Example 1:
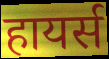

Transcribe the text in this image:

हायर्स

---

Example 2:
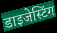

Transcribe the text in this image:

डाइजेस्टिंग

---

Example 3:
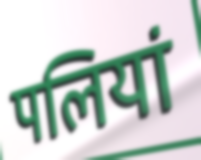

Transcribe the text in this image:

पलियां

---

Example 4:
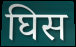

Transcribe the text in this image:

घिस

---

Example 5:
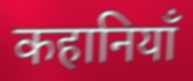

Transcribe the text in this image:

कहानियाँ